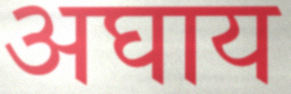
अघाय